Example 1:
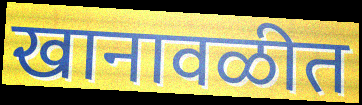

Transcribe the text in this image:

खानावळीत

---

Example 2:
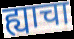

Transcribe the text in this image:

ह्याचा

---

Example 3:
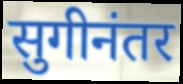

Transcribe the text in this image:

सुगीनंतर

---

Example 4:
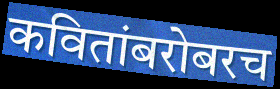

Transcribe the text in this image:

कवितांबरोबरच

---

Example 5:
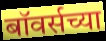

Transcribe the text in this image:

बॉवर्सच्या